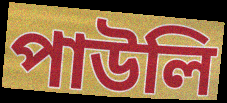
পাউলি